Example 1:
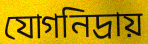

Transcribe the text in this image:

যোগনিদ্রায়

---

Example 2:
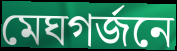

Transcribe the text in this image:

মেঘগর্জনে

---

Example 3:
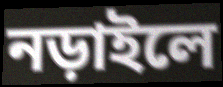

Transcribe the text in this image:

নড়াইলে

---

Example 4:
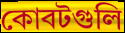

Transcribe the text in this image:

কোবটগুলি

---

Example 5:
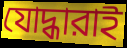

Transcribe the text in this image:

যোদ্ধারাই